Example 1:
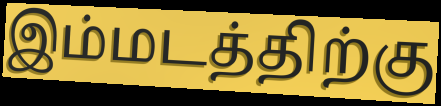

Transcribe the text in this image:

இம்மடத்திற்கு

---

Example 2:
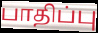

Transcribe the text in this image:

பாதிப்பு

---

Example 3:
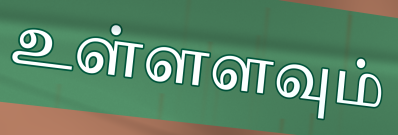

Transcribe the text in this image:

உள்ளளவும்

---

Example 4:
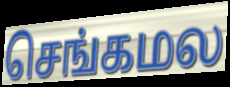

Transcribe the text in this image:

செங்கமல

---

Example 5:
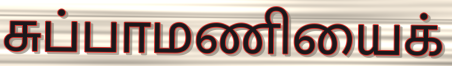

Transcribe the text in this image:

சுப்பாமணியைக்